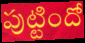
పుట్టిందో